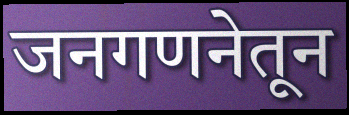
जनगणनेतून